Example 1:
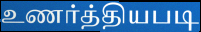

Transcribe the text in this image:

உணர்த்தியபடி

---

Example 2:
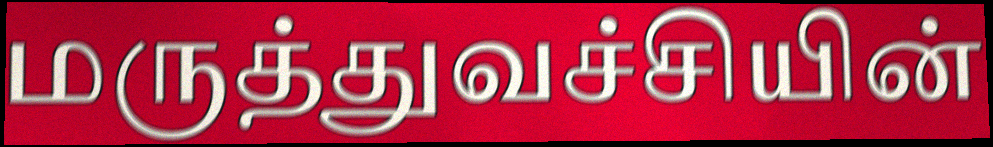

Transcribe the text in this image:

மருத்துவச்சியின்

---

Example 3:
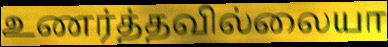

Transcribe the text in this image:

உணர்த்தவில்லையா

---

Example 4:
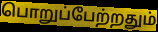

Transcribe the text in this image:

பொறுப்பேற்றதும்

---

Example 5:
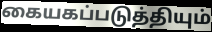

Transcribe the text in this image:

கையகப்படுத்தியும்